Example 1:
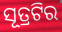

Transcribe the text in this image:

ସୂତ୍ରଟିର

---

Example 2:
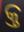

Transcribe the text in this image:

କ୍ତ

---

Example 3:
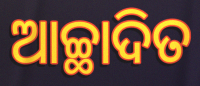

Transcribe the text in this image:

ଆଚ୍ଛାଦିତ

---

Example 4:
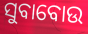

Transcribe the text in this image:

ସୁବାବୋଉ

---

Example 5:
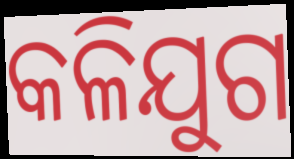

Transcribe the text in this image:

କଳିଯୁଗ